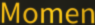
Momen